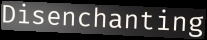
Disenchanting